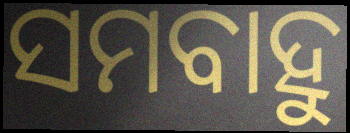
ସମବାହୁ